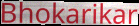
Bhokarikar